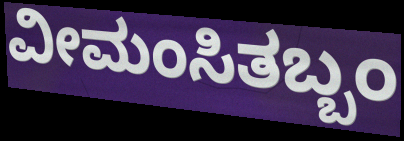
ವೀಮಂಸಿತಬ್ಬಂ